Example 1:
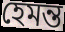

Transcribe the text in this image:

হেমন্ত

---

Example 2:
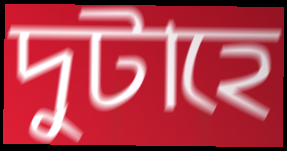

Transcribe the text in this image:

দুটাহে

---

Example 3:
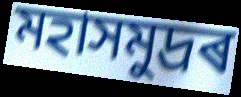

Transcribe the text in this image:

মহাসমুদ্ৰৰ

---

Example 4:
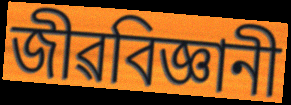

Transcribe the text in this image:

জীৱবিজ্ঞানী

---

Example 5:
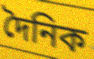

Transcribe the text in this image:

দৈনিক